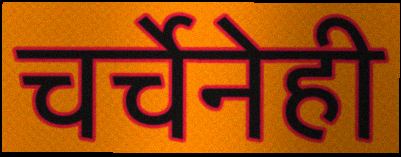
चर्चेनेही